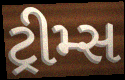
ટ્રીમ્સ